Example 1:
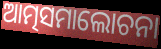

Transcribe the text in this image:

ଆତ୍ମସମାଲୋଚନା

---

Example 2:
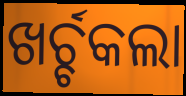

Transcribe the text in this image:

ଖର୍ଚ୍ଚକଲା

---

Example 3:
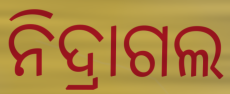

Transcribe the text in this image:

ନିଦ୍ରାଗଲ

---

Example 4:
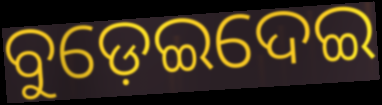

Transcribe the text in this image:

ବୁଡ଼େଇଦେଇ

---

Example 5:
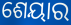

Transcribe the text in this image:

ଶେୟାର